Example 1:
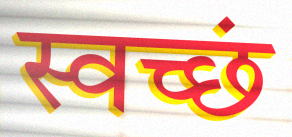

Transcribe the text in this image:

स्वच्छं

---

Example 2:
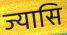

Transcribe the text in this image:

ज्यासि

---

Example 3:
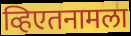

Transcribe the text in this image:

व्हिएतनामला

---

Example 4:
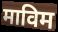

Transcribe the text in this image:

माविम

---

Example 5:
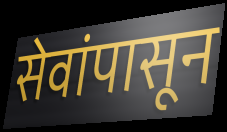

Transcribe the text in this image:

सेवांपासून